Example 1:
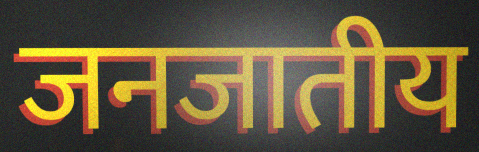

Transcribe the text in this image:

जनजातीय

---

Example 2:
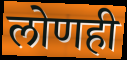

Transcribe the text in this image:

लोणही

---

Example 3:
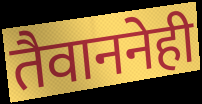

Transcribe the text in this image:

तैवाननेही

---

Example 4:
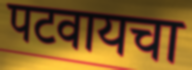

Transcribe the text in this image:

पटवायचा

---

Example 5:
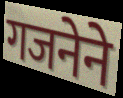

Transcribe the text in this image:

गजनेने